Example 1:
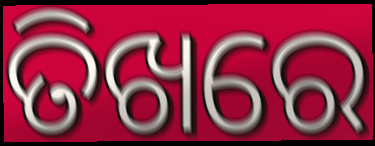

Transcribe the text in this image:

ତିଖରେ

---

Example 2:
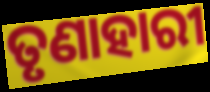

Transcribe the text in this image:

ତୃଣାହାରୀ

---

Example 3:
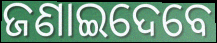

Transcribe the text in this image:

ଜଣାଇଦେବେ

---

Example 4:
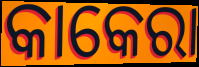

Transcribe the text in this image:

କାକେରା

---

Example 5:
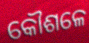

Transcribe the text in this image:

କୌଶଳେ